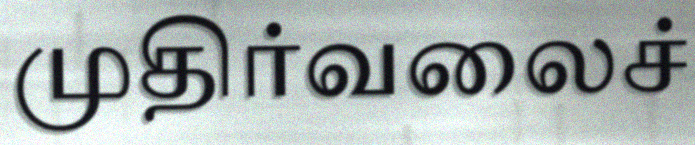
முதிர்வலைச்